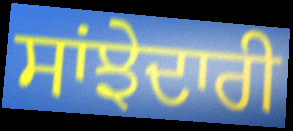
ਸਾਂਝੇਦਾਰੀ